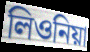
লিওনিয়া